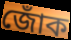
জোঁক